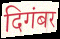
दिगंबर